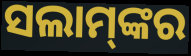
ସଲାମ୍‌ଙ୍କର